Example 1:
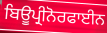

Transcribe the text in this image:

ਬਿਊਪ੍ਰੀਨੋਰਫਾਈਨ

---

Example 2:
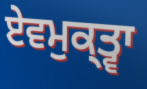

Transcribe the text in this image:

ਏਵਮੁਕ੍ਤ੍ਵਾ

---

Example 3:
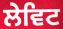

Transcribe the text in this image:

ਲੇਵਿਟ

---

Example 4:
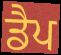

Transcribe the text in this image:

ਡੈਪ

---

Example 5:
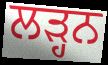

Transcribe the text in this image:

ਲੜ੍ਹਨ